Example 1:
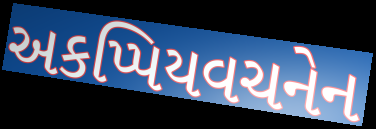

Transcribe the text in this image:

અકપ્પિયવચનેન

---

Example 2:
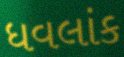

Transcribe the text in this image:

ધવલાંક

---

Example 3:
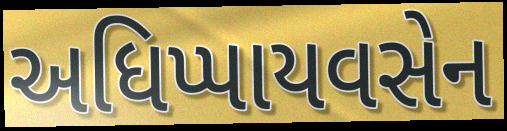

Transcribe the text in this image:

અધિપ્પાયવસેન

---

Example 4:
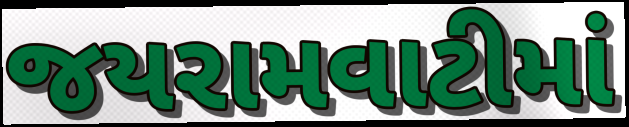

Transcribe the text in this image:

જયરામવાટીમાં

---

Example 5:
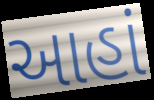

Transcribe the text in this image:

આહાં